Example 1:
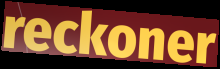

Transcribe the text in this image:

reckoner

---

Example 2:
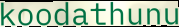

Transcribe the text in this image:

koodathunu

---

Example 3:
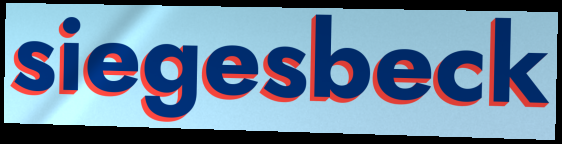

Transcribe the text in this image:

siegesbeck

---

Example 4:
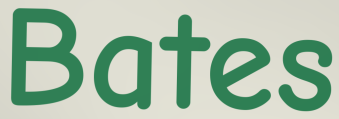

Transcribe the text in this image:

Bates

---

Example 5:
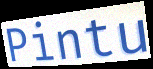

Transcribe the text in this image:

Pintu